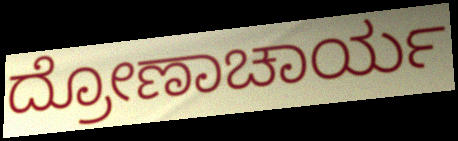
ದ್ರೋಣಾಚಾರ್ಯ